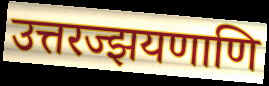
उत्तरज्झयणाणि